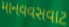
માનવવસવાટ